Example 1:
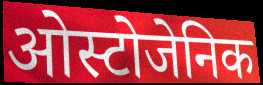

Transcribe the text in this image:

ओस्टोजेनिक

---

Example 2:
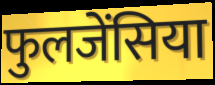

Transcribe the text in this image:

फुलजेंसिया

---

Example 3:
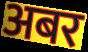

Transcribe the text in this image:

अबर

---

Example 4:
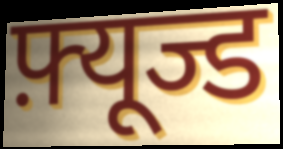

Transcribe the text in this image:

फ़्यूज्ड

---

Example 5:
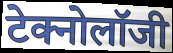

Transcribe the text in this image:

टेक्‍नोलॉजी